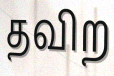
தவிற